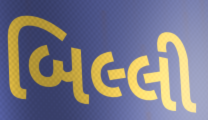
બિલ્લી